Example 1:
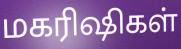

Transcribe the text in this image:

மகரிஷிகள்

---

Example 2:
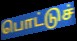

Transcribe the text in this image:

பொட்டுச்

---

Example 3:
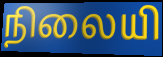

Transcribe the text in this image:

நிலையி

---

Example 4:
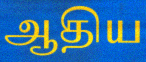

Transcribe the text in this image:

ஆதிய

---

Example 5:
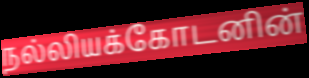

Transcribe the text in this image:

நல்லியக்கோடனின்